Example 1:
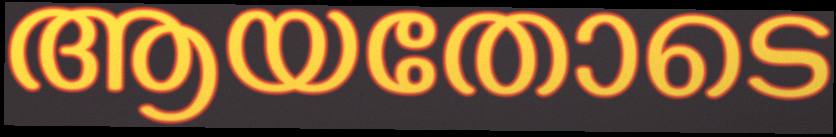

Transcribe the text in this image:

ആയതോടെ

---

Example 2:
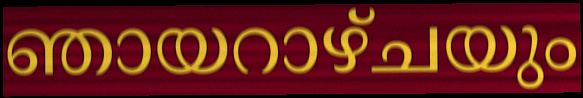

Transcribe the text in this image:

ഞായറാഴ്ചയും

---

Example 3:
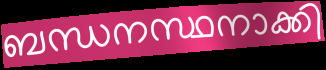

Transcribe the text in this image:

ബന്ധനസ്ഥനാക്കി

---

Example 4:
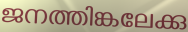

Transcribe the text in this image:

ജനത്തിങ്കലേക്കു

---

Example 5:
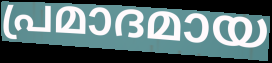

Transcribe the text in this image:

പ്രമാദമായ